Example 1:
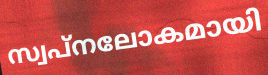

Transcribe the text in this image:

സ്വപ്നലോകമായി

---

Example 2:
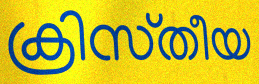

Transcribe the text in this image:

ക്രിസ്‌തീയ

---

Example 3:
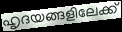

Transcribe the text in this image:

ഹൃദയങ്ങളിലേക്ക്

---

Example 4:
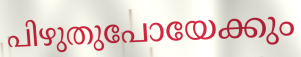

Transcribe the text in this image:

പിഴുതുപോയേക്കും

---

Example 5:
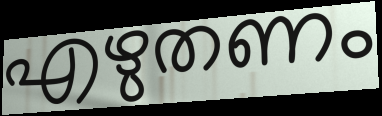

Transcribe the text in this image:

എഴുതണം